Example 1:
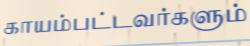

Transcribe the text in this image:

காயம்பட்டவர்களும்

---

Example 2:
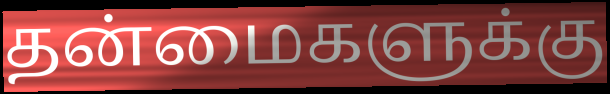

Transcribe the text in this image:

தன்மைகளுக்கு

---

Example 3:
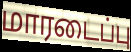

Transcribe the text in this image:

மாரடைப்பு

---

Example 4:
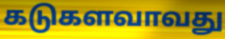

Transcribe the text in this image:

கடுகளவாவது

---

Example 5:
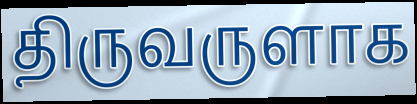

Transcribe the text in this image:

திருவருளாக